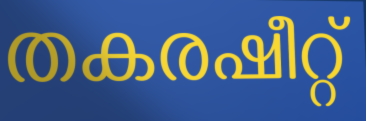
തകരഷീറ്റ്